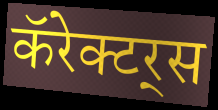
कॅरेक्टर्स